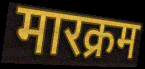
मारक्रम